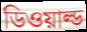
ডিওয়াল্ড